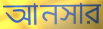
আনসার